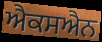
ਐਕਸਐਨ